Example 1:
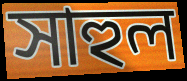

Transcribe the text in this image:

সাহুল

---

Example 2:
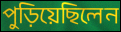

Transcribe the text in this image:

পুড়িয়েছিলেন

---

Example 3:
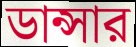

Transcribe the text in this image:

ডান্সার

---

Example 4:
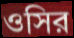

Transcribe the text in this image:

ওসির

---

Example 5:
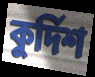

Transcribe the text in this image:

কুর্দিশ